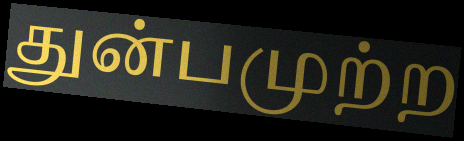
துன்பமுற்ற